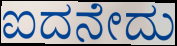
ಐದನೇದು